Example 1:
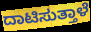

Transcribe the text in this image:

ದಾಟಿಸುತ್ತಾಳೆ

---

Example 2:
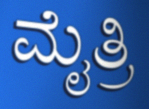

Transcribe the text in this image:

ಮೈತ್ರಿ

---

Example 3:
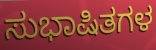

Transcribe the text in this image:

ಸುಭಾಷಿತಗಳ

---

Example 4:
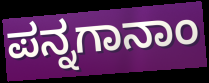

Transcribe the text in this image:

ಪನ್ನಗಾನಾಂ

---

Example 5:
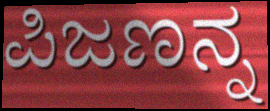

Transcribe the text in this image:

ಪಿಜಣನ್ನ